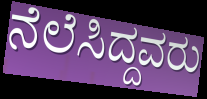
ನೆಲೆಸಿದ್ದವರು